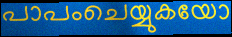
പാപംചെയ്യുകയോ